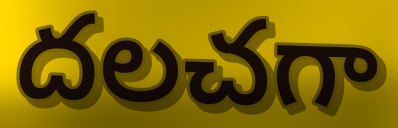
దలచగా